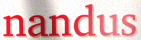
nandus